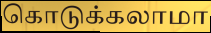
கொடுக்கலாமா